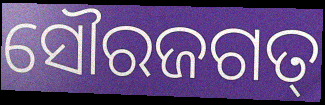
ସୌରଜଗତ୍